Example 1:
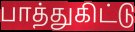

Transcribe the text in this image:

பாத்துகிட்டு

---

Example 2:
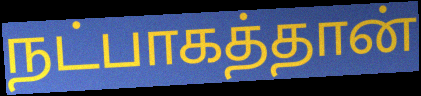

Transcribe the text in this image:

நட்பாகத்தான்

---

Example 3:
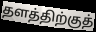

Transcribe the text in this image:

தளத்திற்குத்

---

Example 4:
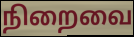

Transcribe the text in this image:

நிறைவை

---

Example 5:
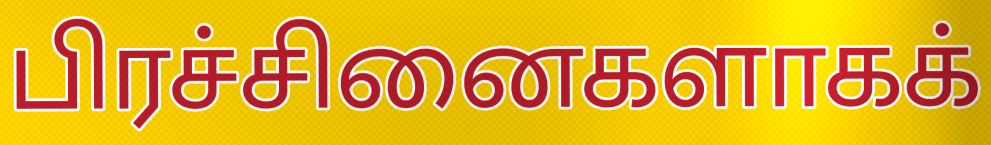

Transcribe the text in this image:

பிரச்சினைகளாகக்